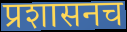
प्रशासनच